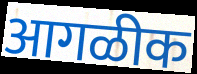
आगळीक